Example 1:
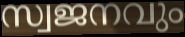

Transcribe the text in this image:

സ്വജനവും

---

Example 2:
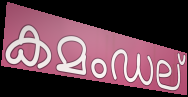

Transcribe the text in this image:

കമംഡല്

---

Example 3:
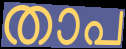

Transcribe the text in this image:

താപ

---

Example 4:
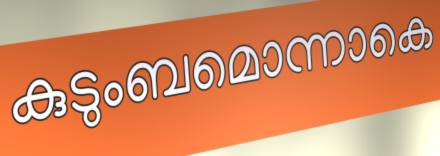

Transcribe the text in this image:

കുടുംബമൊന്നാകെ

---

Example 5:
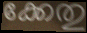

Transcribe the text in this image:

ക്കേതു